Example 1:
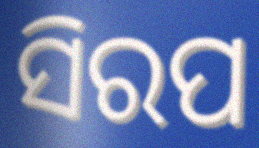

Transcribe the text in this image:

ସିରପ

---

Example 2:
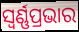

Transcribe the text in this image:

ସ୍ୱର୍ଣ୍ଣପ୍ରଭାର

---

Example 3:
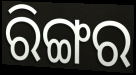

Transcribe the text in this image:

ରିଙ୍ଗର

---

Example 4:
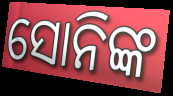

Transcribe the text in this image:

ସୋନିଙ୍କ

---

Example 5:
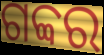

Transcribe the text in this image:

ଗବ୍ବର